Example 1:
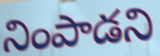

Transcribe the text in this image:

నింపాడని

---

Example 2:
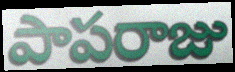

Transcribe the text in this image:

పాపరాజు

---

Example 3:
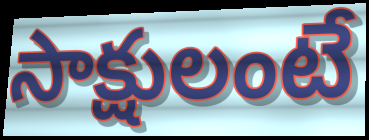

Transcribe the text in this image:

సాక్షులంటే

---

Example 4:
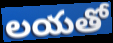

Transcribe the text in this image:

లయతో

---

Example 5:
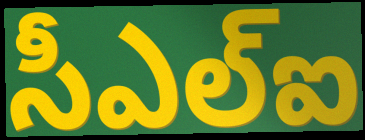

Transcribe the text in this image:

సీఎల్ఐ